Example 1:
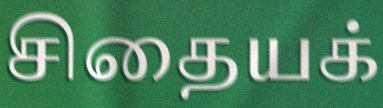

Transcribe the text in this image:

சிதையக்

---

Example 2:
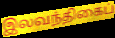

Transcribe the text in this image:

இலவந்திகைப்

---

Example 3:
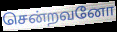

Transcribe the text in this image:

சென்றவனோ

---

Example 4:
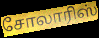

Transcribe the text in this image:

சோலாரிஸ்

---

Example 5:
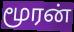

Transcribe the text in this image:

மூரன்